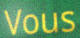
Vous